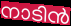
നാടിൻ